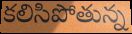
కలిసిపోతున్న